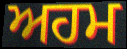
ਅਹਮ